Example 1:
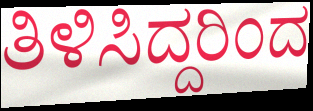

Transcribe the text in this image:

ತಿಳಿಸಿದ್ದರಿಂದ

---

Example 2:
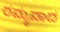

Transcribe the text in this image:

ರಮ್ಯವಾದ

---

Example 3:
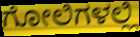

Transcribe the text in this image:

ಗೋಲಿಗಳಲ್ಲಿ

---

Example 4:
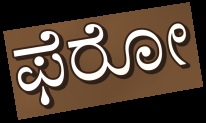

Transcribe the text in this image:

ಫೆರೋ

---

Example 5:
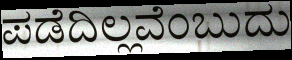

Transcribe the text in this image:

ಪಡೆದಿಲ್ಲವೆಂಬುದು